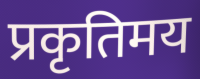
प्रकृतिमय